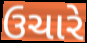
ઉચારે